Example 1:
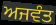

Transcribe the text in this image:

ਅਜਵੰਤ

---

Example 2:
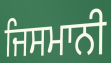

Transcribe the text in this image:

ਜਿਸਮਾਨੀ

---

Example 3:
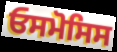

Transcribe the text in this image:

ਓਸਮੋਸਿਸ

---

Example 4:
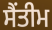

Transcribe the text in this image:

ਸੈਂਤੀਮ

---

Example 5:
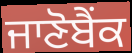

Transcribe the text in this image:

ਜਾਣੋਬੈਂਕ